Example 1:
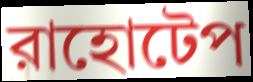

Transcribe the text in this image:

রাহোটেপ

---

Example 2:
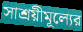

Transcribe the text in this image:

সাশ্রয়ীমূল্যের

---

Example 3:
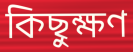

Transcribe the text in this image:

কিছুক্ষণ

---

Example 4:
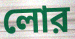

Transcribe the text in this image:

লোর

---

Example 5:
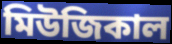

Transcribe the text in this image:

মিউজিকাল